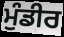
ਮੁੰਡੀਰ